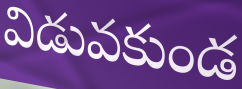
విడువకుండ